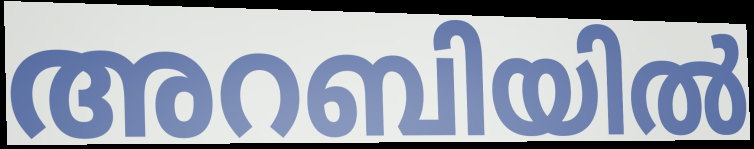
അറബിയിൽ